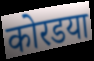
कोरडया